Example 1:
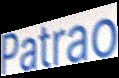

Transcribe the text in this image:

Patrao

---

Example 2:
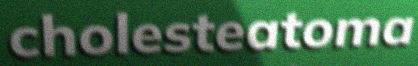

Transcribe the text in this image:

cholesteatoma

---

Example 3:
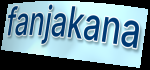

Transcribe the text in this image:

fanjakana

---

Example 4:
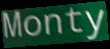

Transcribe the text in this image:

Monty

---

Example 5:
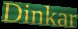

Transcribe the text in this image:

Dinkar